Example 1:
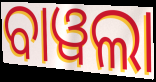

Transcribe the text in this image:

ବାୱଲା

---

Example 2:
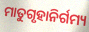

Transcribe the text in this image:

ମାତୁଗୃହାନିର୍ଗମ୍ୟ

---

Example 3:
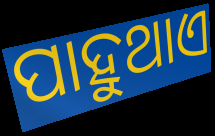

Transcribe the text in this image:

ପାହୁଥାଏ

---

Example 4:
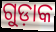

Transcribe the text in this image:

ଗୁଡ଼ାକ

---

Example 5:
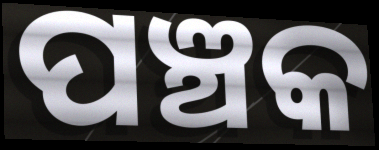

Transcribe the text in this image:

ପଞ୍ଚକ